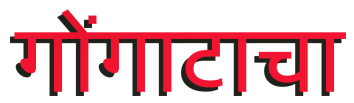
गोंगाटाचा